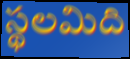
స్థలమిది